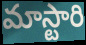
మాస్టారి